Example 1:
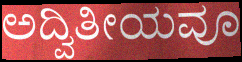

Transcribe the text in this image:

ಅದ್ವಿತೀಯವೂ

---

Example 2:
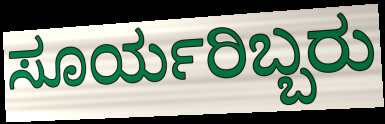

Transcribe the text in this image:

ಸೂರ್ಯರಿಬ್ಬರು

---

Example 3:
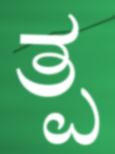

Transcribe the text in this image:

ತ್ಪ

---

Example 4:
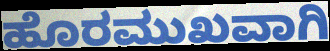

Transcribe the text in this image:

ಹೊರಮುಖವಾಗಿ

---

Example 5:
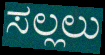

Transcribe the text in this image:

ಸಲ್ಲಲು